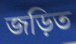
জড়িত